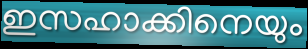
ഇസഹാക്കിനെയും